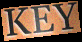
KEY